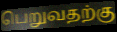
பெறுவதற்கு